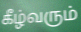
கீழ்வரும்